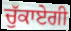
ਚੁੱਕਾਏਗੀ